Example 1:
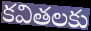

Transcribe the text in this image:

కవితలకు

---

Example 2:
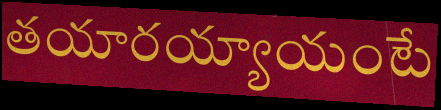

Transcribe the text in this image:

తయారయ్యాయంటే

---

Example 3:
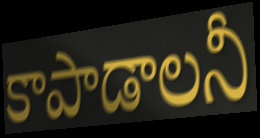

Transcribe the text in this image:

కాపాడాలనీ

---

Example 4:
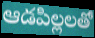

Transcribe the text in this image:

ఆడపిల్లలతో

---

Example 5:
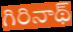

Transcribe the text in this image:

గిరినాథ్